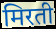
मिरती